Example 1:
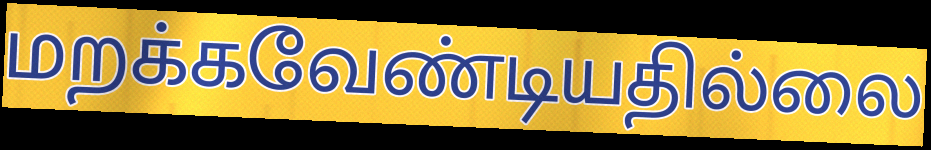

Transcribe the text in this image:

மறக்கவேண்டியதில்லை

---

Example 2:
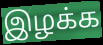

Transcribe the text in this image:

இழக்க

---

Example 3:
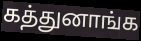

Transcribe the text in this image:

கத்துனாங்க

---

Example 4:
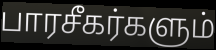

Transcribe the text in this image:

பாரசீகர்களும்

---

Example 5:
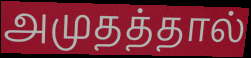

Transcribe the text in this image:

அமுதத்தால்